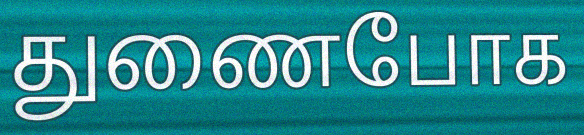
துணைபோக